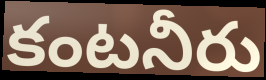
కంటనీరు